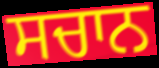
ਸਚਾਨ